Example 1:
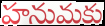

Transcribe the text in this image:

హనుమకు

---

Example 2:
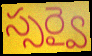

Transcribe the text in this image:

స్సర్వై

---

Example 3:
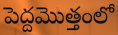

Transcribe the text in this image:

పెద్దమొత్తంలో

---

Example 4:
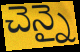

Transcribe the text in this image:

చెన్నై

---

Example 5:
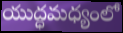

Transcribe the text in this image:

యుద్ధమధ్యంలో